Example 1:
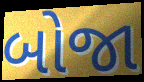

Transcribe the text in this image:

બોજા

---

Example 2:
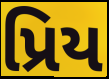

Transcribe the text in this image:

પ્રિય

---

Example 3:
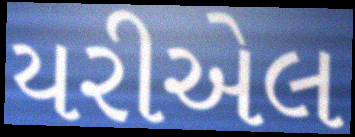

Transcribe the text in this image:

યરીએલ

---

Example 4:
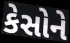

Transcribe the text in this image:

કેસોને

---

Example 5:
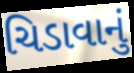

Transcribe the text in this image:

ચિડાવાનું